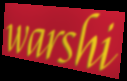
warshi